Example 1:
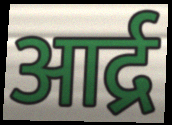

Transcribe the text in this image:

आर्द्र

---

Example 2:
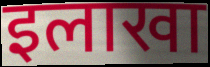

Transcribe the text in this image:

इलाखा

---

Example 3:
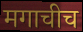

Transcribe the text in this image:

मगाचीच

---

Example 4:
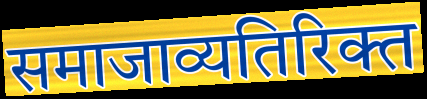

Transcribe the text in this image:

समाजाव्यतिरिक्त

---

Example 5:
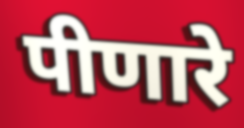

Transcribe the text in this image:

पीणारे